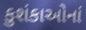
કુશંકાઓનાં